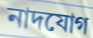
নাদযোগ